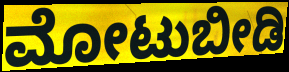
ಮೋಟುಬೀಡಿ